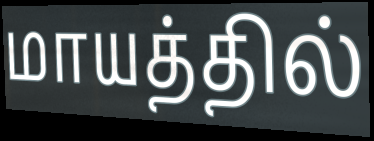
மாயத்தில்